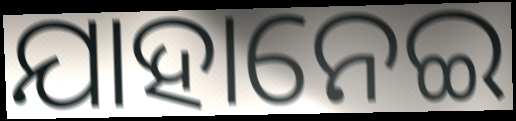
ଯାହାନେଇ